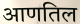
आणतिल